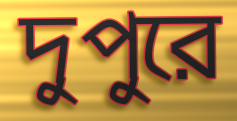
দুপুরে